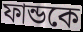
ফান্ডকে